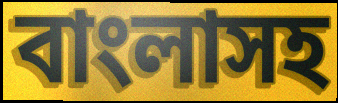
বাংলাসহ